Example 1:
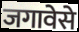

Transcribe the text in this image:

जगावेसे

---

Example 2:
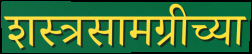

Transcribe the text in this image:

शस्त्रसामग्रीच्या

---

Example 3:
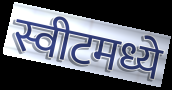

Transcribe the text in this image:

स्वीटमध्ये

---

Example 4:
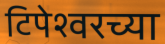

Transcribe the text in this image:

टिपेश्वरच्या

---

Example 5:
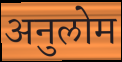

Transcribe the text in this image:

अनुलोम